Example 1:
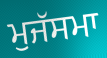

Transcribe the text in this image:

ਮੁਜੱਸਮਾ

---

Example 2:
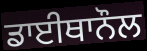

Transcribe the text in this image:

ਡਾਈਥਾਨੌਲ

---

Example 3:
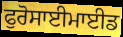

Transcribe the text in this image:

ਫੁਰੋਸਾਈਮਾਈਡ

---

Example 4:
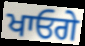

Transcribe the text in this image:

ਖਾਓਗੇ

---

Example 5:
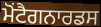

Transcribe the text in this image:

ਮੋਂਟੈਗਨਾਰਡਸ